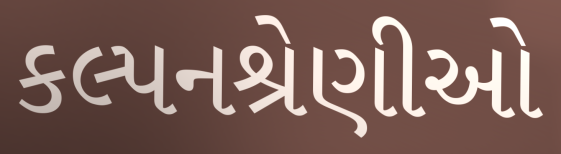
કલ્પનશ્રેણીઓ